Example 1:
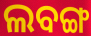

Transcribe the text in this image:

ଲବଙ୍ଗ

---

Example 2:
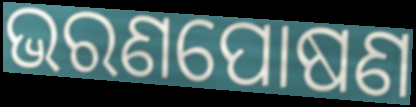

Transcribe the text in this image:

ଭରଣପୋଷଣ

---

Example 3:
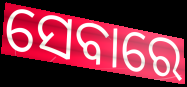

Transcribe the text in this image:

ସେବାରେ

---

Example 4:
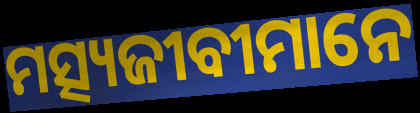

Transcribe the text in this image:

ମତ୍ସ୍ୟଜୀବୀମାନେ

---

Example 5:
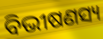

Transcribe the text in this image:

ବିଭୀଷଣସ୍ୟ